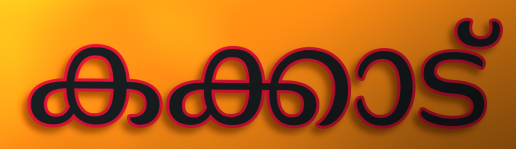
കക്കാട്